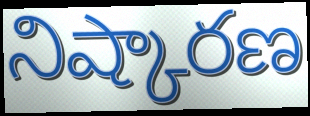
నిష్కారణ